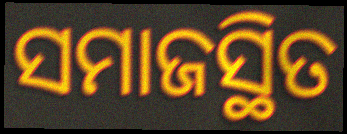
ସମାଜସ୍ଥିତ